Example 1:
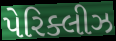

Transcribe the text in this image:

પેરિક્લીઝ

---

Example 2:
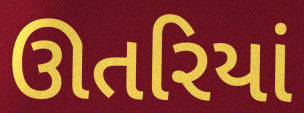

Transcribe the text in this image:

ઊતરિયાં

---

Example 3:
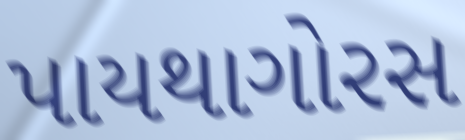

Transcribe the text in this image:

પાયથાગોરસ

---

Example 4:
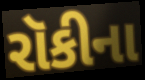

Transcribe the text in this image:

રૉકીના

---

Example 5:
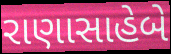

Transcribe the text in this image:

રાણાસાહેબે